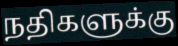
நதிகளுக்கு